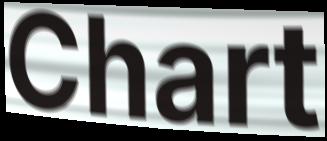
Chart